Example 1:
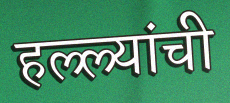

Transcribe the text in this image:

हल्ल्यांची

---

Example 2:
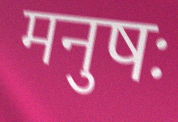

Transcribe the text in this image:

मनुषः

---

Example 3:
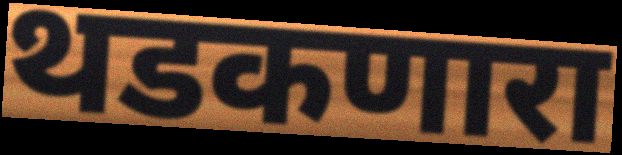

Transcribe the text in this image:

थडकणारा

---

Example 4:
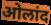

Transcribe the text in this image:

ओलांद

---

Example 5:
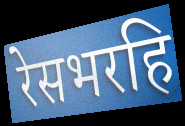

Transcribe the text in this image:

रेसभरहि